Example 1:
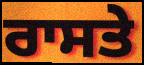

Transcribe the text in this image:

ਰਾਸਤੇ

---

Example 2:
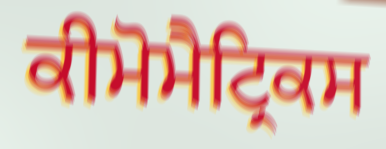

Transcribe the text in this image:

ਕੀਮੋਮੈਟ੍ਰਿਕਸ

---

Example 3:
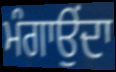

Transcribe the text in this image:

ਮੰਗਾਉਂਦਾ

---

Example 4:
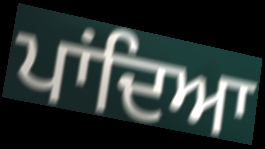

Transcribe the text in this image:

ਪਾਂਦਿਆ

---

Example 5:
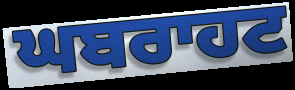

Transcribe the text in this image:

ਘਬਰਾਹਟ